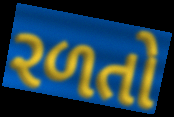
રળતો